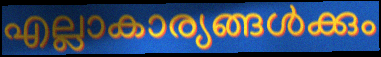
എല്ലാകാര്യങ്ങൾക്കും